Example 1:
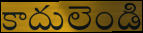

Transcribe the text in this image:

కాదులెండి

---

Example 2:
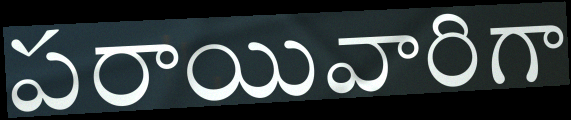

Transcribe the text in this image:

పరాయివారిగా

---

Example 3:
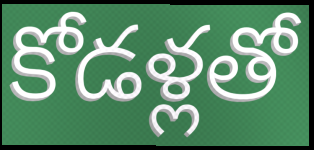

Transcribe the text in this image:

కోడళ్లతో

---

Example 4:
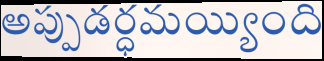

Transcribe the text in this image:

అప్పుడర్ధమయ్యింది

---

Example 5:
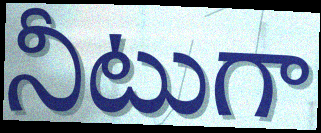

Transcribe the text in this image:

నీటుగా